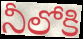
నీలోకి